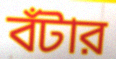
বঁটার